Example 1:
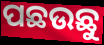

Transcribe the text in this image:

ପଛଉଛୁ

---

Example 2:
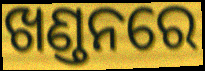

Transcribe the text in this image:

ଖଣ୍ଡନରେ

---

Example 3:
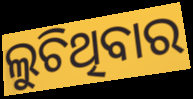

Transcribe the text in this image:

ଲୁଚିଥିବାର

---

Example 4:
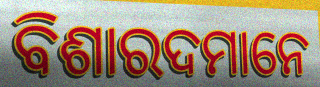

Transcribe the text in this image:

ବିଶାରଦମାନେ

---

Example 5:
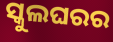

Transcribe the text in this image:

ସ୍କୁଲଘରର